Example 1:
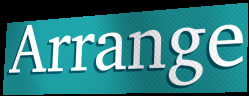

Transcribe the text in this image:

Arrange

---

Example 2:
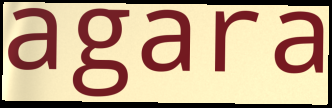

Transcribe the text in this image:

agara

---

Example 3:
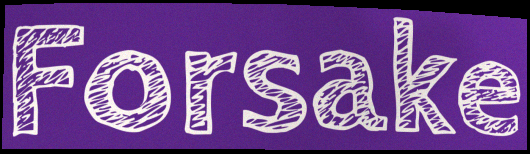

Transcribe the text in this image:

Forsake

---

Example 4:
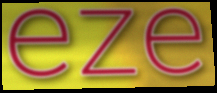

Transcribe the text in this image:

eze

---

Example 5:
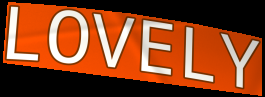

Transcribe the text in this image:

LOVELY